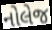
નોલેજ